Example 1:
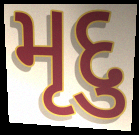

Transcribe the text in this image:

મૃદુ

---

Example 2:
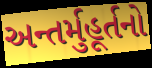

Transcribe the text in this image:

અન્તર્મુહૂર્તનો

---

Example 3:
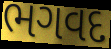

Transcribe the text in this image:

ભગવદ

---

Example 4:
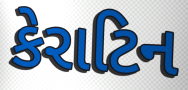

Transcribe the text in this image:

કેરાટિન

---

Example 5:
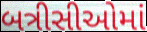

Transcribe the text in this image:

બત્રીસીઓમાં